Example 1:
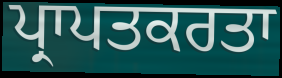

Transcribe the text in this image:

ਪ੍ਰਾਪਤਕਰਤਾ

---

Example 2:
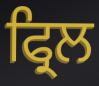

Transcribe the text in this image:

ਫ੍ਰਿਲ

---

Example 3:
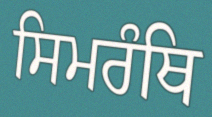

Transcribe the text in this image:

ਸਿਮਰੰਥਿ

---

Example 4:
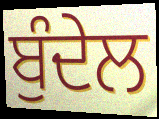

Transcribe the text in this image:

ਬੁੰਦੇਲ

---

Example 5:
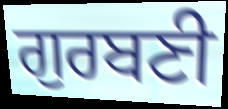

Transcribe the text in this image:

ਗੁਰਬਣੀ